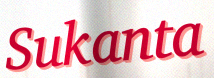
Sukanta